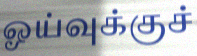
ஓய்வுக்குச்